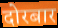
दोरबार